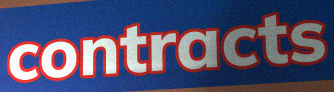
contracts